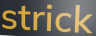
strick